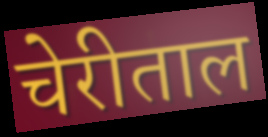
चेरीताल